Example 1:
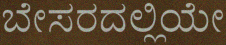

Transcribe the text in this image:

ಬೇಸರದಲ್ಲಿಯೇ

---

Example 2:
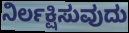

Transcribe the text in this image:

ನಿರ್ಲಕ್ಷಿಸುವುದು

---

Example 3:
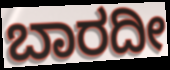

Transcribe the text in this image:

ಬಾರದೀ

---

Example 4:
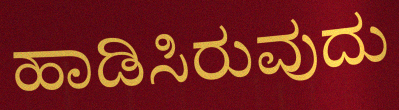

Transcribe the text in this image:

ಹಾಡಿಸಿರುವುದು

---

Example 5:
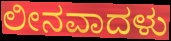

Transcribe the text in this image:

ಲೀನವಾದಳು